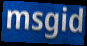
msgid